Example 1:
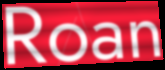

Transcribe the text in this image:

Roan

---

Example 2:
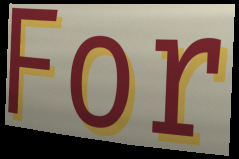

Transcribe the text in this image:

For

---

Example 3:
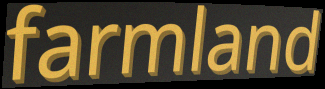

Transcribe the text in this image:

farmland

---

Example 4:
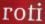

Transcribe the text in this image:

roti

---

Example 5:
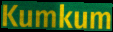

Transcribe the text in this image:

Kumkum